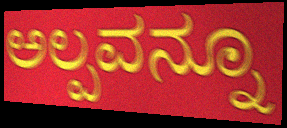
ಅಲ್ಪವನ್ನೂ